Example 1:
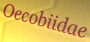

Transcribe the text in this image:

Oecobiidae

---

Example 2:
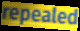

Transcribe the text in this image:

repealed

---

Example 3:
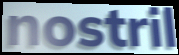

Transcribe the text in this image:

nostril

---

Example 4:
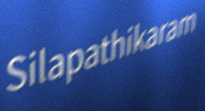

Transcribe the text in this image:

Silapathikaram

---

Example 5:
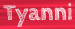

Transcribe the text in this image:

Tyanni